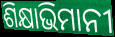
ଶିକ୍ଷାଭିମାନୀ